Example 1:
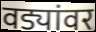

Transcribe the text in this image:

वड्यांवर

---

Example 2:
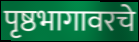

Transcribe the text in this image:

पृष्ठभागावरचे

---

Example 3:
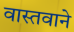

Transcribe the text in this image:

वास्तवाने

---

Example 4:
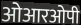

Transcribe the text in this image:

ओआरओपी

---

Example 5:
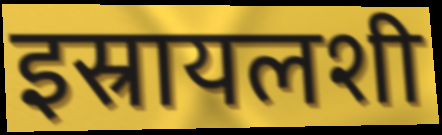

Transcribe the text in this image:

इस्रायलशी